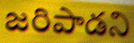
జరిపాడని